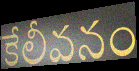
కేలీవనం